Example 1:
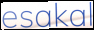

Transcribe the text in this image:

esakal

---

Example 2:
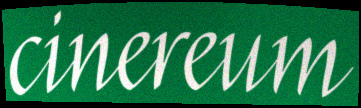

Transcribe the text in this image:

cinereum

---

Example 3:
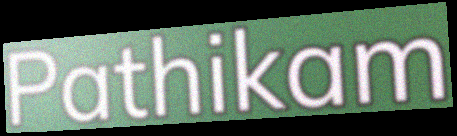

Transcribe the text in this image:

Pathikam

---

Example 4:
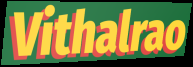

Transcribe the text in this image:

Vithalrao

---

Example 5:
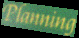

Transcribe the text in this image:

Planning